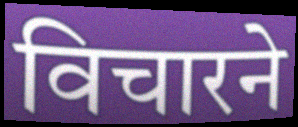
विचारने